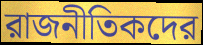
রাজনীতিকদের